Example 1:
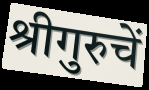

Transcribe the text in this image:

श्रीगुरुचें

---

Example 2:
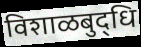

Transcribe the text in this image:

विशाळबुद्धि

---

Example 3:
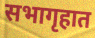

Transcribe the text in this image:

सभागृहात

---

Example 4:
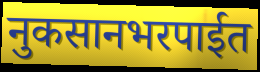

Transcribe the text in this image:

नुकसानभरपाईत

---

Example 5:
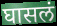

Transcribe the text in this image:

घासलं